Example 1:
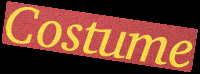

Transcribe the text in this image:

Costume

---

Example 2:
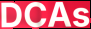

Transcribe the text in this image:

DCAs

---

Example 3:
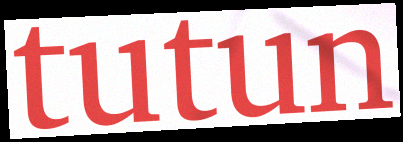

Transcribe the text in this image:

tutun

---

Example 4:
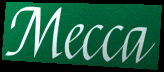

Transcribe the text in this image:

Mecca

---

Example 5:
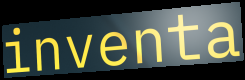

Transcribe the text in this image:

inventa